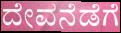
ದೇವನೆಡೆಗೆ